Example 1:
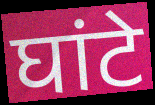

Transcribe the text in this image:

घांटे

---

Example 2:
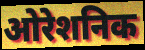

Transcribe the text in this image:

ओरेशनिक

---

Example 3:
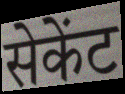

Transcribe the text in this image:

सेकेंट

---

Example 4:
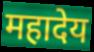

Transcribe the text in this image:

महादेय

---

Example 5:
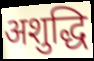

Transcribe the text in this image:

अशुद्धि